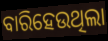
ବାରିହେଉଥିଲା